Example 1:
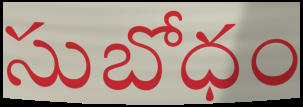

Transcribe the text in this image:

సుబోధం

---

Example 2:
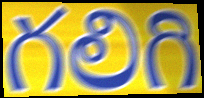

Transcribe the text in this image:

గలిగి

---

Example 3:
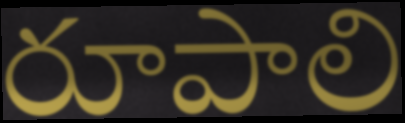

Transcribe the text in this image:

రూపాలి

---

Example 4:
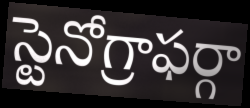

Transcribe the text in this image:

స్టెనోగ్రాఫర్గా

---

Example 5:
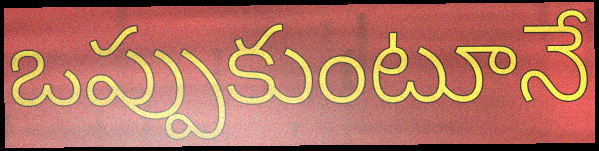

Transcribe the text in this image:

ఒప్పుకుంటూనే